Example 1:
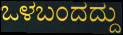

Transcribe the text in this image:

ಒಳಬಂದದ್ದು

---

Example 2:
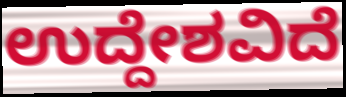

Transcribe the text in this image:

ಉದ್ದೇಶವಿದೆ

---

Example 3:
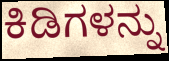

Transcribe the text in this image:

ಕಿಡಿಗಳನ್ನು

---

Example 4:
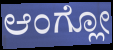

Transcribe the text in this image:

ಆಂಗ್ಲೋ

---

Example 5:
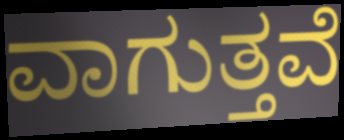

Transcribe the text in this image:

ವಾಗುತ್ತವೆ